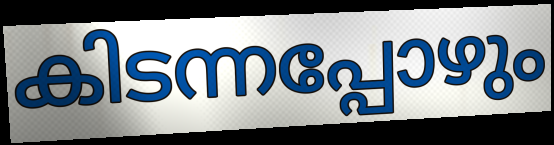
കിടന്നപ്പോഴും